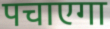
पचाएगा